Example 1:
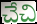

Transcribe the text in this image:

చేచి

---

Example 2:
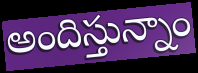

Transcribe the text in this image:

అందిస్తున్నాం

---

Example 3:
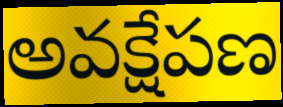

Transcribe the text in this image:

అవక్షేపణ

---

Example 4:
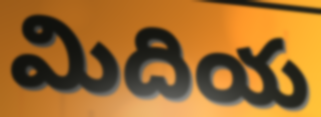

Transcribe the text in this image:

మిదియ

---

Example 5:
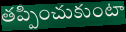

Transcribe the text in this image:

తప్పించుకుంటా